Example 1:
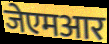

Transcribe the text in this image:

जेएमआर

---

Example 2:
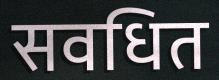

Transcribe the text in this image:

सवधित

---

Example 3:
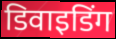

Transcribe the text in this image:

डिवाइडिंग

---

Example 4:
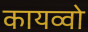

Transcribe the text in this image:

कायव्वो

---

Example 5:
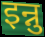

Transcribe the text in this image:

इन्नु